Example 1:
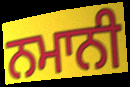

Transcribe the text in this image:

ਨਮਾਨੀ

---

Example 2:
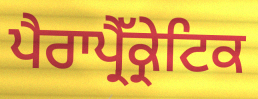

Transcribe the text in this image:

ਪੈਰਾਪ੍ਰੈੱਕ੍ਰੇਟਿਕ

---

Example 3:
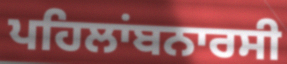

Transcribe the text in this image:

ਪਹਿਲਾਂਬਨਾਰਸੀ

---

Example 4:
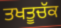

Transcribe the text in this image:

ਤਖਤੂਚੱਕ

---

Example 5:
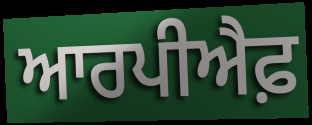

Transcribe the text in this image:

ਆਰਪੀਐਫ਼